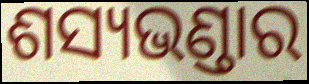
ଶସ୍ୟଭଣ୍ଡାର